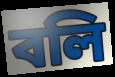
বলি